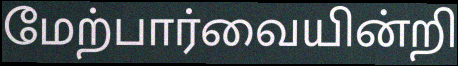
மேற்பார்வையின்றி